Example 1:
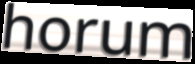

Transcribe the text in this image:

horum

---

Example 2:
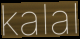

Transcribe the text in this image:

kalal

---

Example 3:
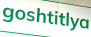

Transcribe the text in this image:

goshtitlya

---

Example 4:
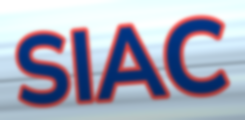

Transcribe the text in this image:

SIAC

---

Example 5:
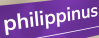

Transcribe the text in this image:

philippinus